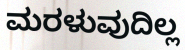
ಮರಳುವುದಿಲ್ಲ